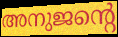
അനുജന്റെ